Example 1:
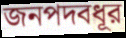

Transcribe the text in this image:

জনপদবধূর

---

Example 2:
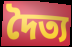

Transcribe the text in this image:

দৈত্য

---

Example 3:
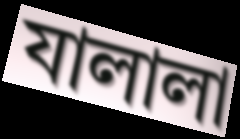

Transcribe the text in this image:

যালালা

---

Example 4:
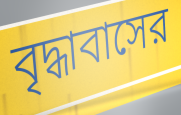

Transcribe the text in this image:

বৃদ্ধাবাসের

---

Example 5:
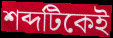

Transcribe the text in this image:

শব্দটিকেই